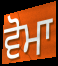
ਵੋਮਾ